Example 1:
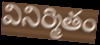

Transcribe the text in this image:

వినిర్మితం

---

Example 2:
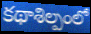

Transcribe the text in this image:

కథాశిల్పంలో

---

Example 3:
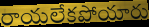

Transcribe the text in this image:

రాయలేకపోయారు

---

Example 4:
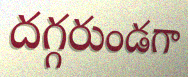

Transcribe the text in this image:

దగ్గరుండగా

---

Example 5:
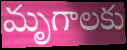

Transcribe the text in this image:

మృగాలకు